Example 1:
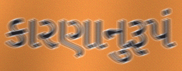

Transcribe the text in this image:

કારણાનુરૂપં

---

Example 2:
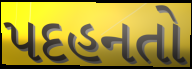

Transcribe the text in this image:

પદહનતો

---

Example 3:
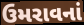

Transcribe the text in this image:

ઉમરાવનાં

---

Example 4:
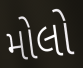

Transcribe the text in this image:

મોલો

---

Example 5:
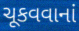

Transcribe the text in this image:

ચૂકવવાનાં